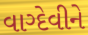
વાગ્દેવીને